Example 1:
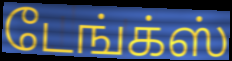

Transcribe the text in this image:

டேங்க்ஸ்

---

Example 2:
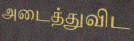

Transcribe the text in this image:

அடைத்துவிட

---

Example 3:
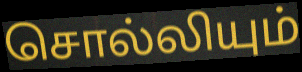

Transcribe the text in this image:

சொல்லியும்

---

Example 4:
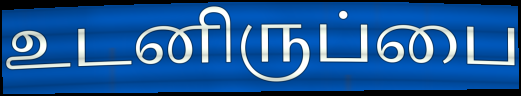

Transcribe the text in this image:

உடனிருப்பை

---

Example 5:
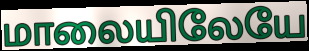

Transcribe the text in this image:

மாலையிலேயே